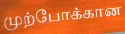
முற்போக்கான